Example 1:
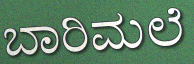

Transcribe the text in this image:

ಬಾರಿಮಲೆ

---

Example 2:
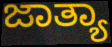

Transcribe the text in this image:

ಜಾತ್ಯಾ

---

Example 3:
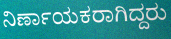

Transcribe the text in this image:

ನಿರ್ಣಾಯಕರಾಗಿದ್ದರು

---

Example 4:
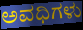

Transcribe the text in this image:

ಅವಧಿಗಳು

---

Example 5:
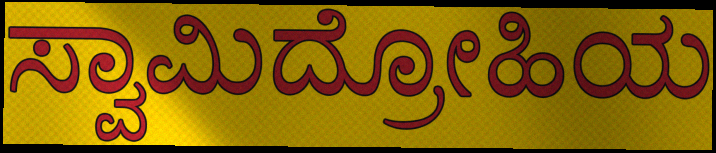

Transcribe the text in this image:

ಸ್ವಾಮಿದ್ರೋಹಿಯ